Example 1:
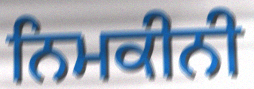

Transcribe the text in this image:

ਨਿਮਕੀਨੀ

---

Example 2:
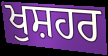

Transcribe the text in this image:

ਖੁਸ਼ਹਰ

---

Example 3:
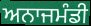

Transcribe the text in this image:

ਅਨਾਜਮੰਡੀ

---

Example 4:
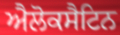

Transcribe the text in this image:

ਐਲੋਕਸੈਟਿਨ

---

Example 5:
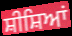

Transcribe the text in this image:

ਸ਼ੀਸ਼ਿਆਂ